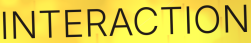
INTERACTION